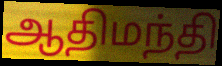
ஆதிமந்தி